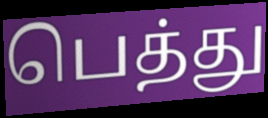
பெத்து